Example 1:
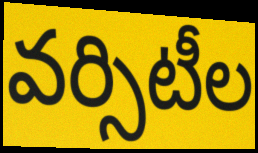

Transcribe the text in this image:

వర్సిటీల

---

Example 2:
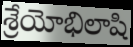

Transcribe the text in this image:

శ్రేయోభిలాషి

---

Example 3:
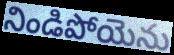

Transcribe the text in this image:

నిండిపోయెను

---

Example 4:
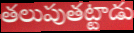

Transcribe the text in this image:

తలుపుతట్టాడు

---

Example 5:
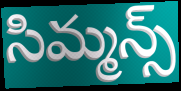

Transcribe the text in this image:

సిమ్మన్స్